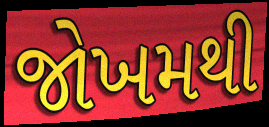
જોખમથી